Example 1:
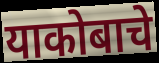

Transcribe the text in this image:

याकोबाचे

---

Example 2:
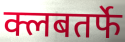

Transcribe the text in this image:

क्लबतर्फे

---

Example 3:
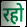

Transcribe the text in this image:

रहो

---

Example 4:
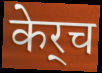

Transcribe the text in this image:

केर्च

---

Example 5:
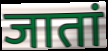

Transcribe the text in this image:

जातां